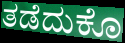
ತಡೆದುಕೊ